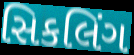
સિકલિંગ